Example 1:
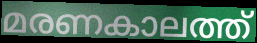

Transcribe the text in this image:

മരണകാലത്ത്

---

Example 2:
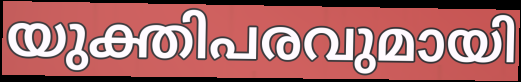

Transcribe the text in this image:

യുക്തിപരവുമായി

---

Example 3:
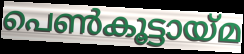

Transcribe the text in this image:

പെൺകൂട്ടായ്മ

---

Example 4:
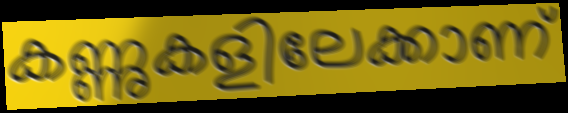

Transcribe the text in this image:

കണ്ണുകളിലേക്കാണ്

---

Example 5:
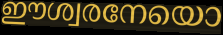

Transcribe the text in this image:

ഈശ്വരനേയൊ